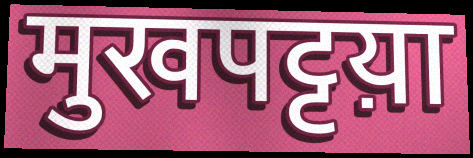
मुखपट्टय़ा